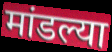
मांडल्या